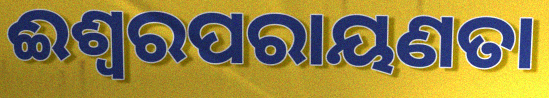
ଈଶ୍ୱରପରାୟଣତା